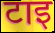
टाइ